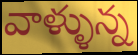
వాళ్ళున్న